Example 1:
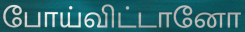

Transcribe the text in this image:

போய்விட்டானோ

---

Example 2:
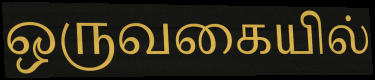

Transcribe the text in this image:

ஒருவகையில்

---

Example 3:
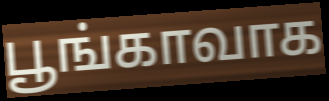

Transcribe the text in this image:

பூங்காவாக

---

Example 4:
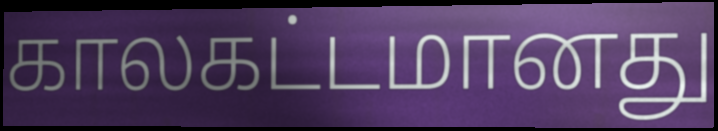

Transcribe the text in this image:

காலகட்டமானது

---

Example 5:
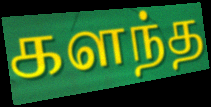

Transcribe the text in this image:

களந்த